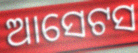
ଆସେଟସ